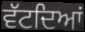
ਵੱਟਦਿਆਂ